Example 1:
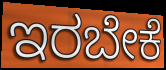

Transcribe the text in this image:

ಇರಬೇಕೆ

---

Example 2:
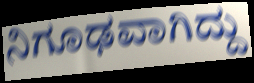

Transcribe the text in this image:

ನಿಗೂಢವಾಗಿದ್ದು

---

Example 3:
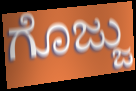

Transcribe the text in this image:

ಗೊಜ್ಜು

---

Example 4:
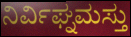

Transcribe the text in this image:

ನಿರ್ವಿಘ್ನಮಸ್ತು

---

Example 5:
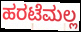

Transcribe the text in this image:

ಹರಟೆಮಲ್ಲ